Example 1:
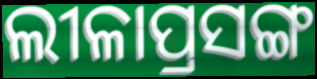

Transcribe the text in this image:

ଲୀଳାପ୍ରସଙ୍ଗ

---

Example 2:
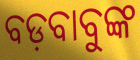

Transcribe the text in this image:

ବଡ଼ବାବୁଙ୍କ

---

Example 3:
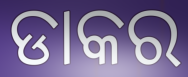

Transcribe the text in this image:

ଡାକର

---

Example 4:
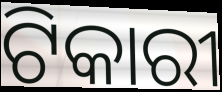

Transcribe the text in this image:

ଟିକାରୀ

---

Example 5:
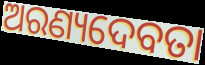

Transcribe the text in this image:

ଅରଣ୍ୟଦେବତା